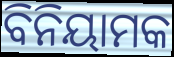
ବିନିୟାମକ